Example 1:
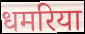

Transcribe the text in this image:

धमरिया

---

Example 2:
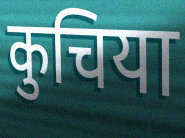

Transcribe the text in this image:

कुचिया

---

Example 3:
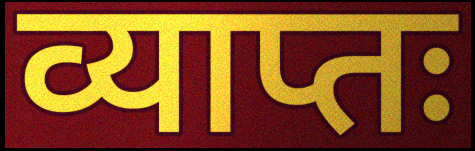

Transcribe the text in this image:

व्याप्तः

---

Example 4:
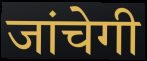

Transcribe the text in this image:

जांचेगी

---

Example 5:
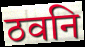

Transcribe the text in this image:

ठवनि